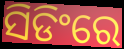
ସିଡିଂରେ